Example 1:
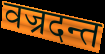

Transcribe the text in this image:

वज्रदन्त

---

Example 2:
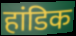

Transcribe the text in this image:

हांडिक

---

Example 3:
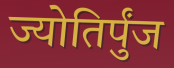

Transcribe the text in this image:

ज्योतिर्पुंज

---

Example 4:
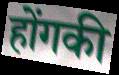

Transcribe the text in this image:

होंगकी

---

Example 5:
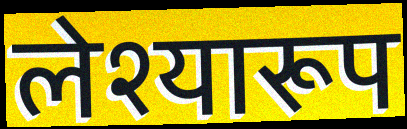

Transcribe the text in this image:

लेश्यारूप